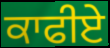
ਕਾਫੀਏ